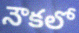
నౌకలో